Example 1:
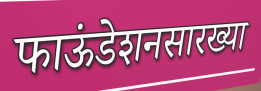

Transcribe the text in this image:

फाऊंडेशनसारख्या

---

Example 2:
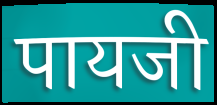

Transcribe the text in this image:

पायजी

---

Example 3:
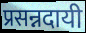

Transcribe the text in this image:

प्रसन्नदायी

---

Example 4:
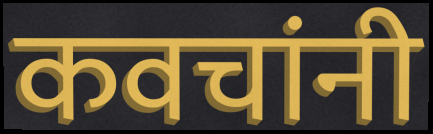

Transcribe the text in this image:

कवचांनी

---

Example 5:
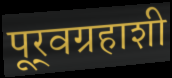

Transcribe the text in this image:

पूर्वग्रहाशी